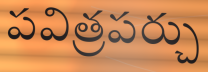
పవిత్రపర్చు